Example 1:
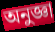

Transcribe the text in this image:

অনুজ্ঞা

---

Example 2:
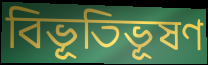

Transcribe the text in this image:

বিভূতিভূষণ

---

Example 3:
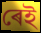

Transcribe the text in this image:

ৰেই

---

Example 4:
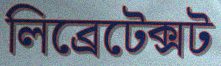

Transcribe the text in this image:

লিব্ৰেটেক্সট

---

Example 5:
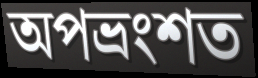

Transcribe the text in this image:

অপভ্ৰংশত